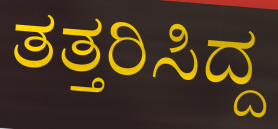
ತತ್ತರಿಸಿದ್ದ